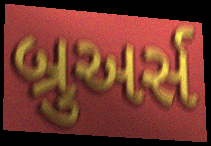
બ્રુઅર્સ